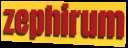
zephirum